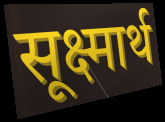
सूक्ष्मार्थ